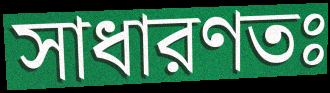
সাধারণতঃ